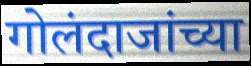
गोलंदाजांच्या